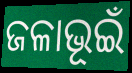
ଜଳାଭୂଇଁ